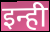
इन्ही